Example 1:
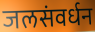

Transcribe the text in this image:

जलसंवर्धन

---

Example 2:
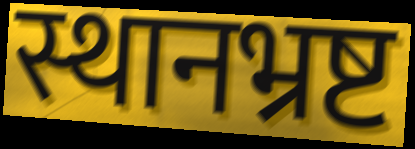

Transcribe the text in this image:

स्थानभ्रष्ट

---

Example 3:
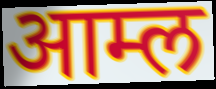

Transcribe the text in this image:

आम्ल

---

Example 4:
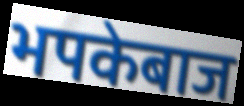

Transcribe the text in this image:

भपकेबाज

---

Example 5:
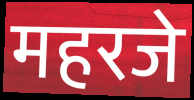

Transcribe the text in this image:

महरजे